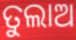
ତୁଲାଅ